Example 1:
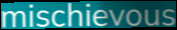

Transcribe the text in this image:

mischievous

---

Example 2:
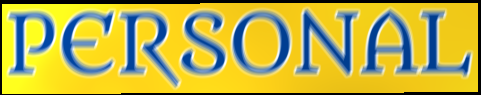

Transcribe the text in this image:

PERSONAL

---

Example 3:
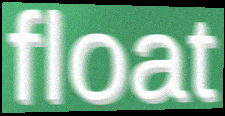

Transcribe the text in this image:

float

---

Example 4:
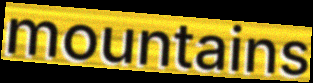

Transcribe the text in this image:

mountains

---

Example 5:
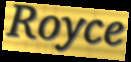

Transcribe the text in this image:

Royce